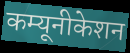
कम्यूनीकेशन